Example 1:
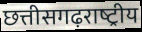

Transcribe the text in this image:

छत्तीसगढ़राष्ट्रीय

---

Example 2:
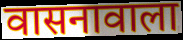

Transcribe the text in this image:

वासनावाला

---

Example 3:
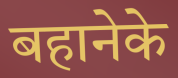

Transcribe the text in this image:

बहानेके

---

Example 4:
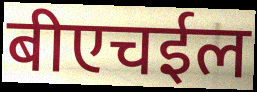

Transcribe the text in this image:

बीएचईल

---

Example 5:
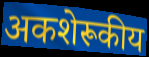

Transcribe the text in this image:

अकशेरूकीय